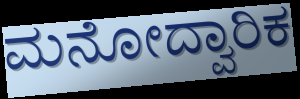
ಮನೋದ್ವಾರಿಕ